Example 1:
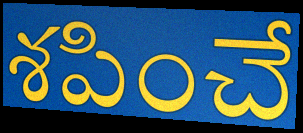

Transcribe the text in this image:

శపించే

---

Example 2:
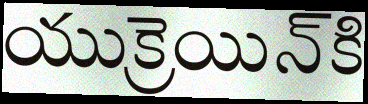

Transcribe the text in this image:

యుక్రెయిన్‌కి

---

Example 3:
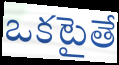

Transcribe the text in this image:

ఒకటైతే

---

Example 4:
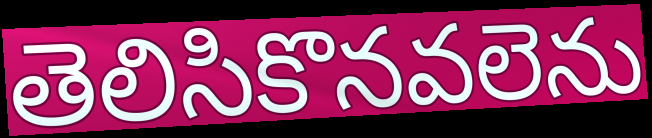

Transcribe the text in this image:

తెలిసికొనవలెను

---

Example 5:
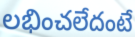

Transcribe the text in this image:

లభించలేదంటే